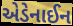
એડેનાઈન